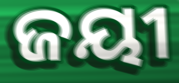
ଜୟୀ